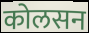
कोलसन